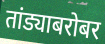
तांड्याबरोबर